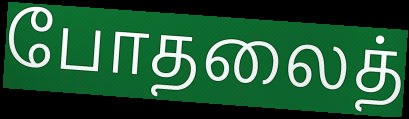
போதலைத்